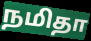
நமிதா